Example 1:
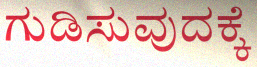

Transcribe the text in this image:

ಗುಡಿಸುವುದಕ್ಕೆ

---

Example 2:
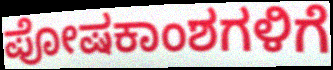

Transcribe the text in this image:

ಪೋಷಕಾಂಶಗಳಿಗೆ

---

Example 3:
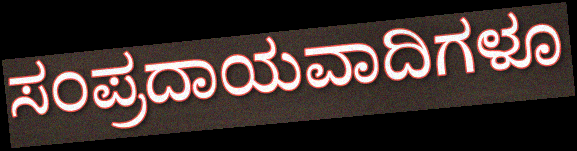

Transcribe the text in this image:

ಸಂಪ್ರದಾಯವಾದಿಗಳೂ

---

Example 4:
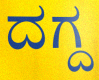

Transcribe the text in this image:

ದಗ್ದ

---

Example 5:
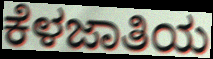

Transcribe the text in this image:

ಕೆಳಜಾತಿಯ